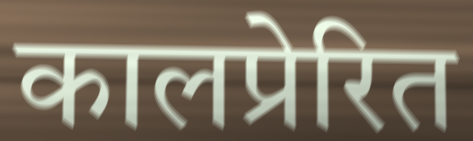
कालप्रेरित